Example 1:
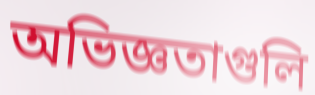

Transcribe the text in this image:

অভিজ্ঞতাগুলি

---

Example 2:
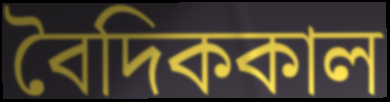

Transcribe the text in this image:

বৈদিককাল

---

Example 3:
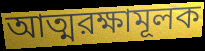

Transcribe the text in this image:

আত্মরক্ষামূলক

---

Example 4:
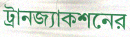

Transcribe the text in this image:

ট্রানজ্যাকশনের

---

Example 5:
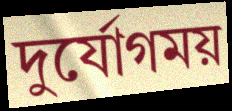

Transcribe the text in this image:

দুর্যোগময়